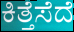
ಕಿತ್ತೆಸೆದೆ